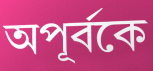
অপূর্বকে